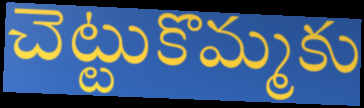
చెట్టుకొమ్మకు